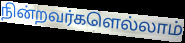
நின்றவர்களெல்லாம்